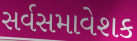
સર્વસમાવેશક